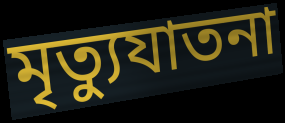
মৃত্যুযাতনা